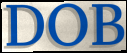
DOB